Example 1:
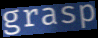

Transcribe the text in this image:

grasp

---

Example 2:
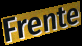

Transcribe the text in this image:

Frente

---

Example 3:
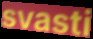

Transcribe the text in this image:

svasti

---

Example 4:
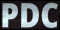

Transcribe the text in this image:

PDC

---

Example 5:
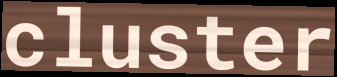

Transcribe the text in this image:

cluster